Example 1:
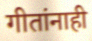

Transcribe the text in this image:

गीतांनाही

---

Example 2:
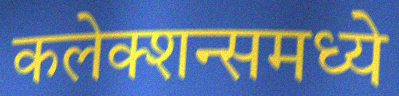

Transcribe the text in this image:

कलेक्शन्समध्ये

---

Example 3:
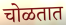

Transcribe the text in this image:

चोळतात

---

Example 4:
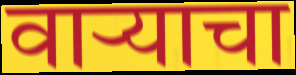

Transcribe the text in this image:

वाऱ्याचा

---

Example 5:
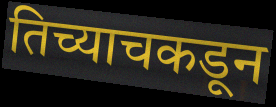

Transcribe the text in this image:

तिच्याचकडून